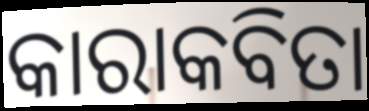
କାରାକବିତା